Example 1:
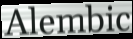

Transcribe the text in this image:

Alembic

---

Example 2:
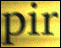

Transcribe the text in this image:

pir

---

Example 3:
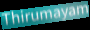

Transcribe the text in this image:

Thirumayam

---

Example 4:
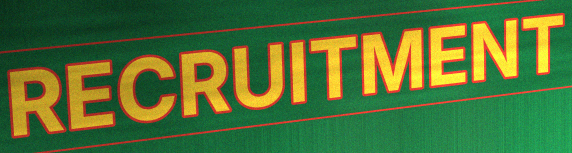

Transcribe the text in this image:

RECRUITMENT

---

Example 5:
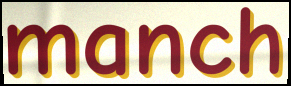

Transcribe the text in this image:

manch